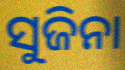
ସୁଜିନା